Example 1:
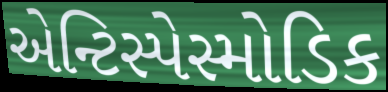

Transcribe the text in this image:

એન્ટિસ્પેસ્મોડિક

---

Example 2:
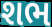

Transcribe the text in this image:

શભ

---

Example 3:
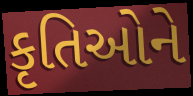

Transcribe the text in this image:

કૃતિઓને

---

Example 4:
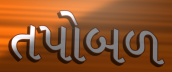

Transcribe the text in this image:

તપોબળ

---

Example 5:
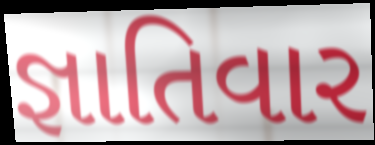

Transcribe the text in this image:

જ્ઞાતિવાર